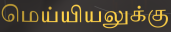
மெய்யியலுக்கு